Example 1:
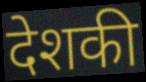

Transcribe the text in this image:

देशकी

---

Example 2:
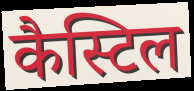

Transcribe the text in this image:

कैस्टिल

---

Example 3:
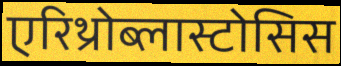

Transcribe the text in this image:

एरिथ्रोब्लास्टोसिस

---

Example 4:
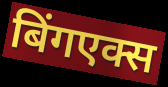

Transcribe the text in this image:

बिंगएक्स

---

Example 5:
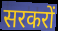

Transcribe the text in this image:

सरकरों